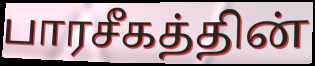
பாரசீகத்தின்